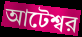
আটেশ্বর